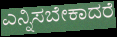
ಎನ್ನಿಸಬೇಕಾದರೆ